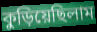
কুড়িয়েছিলাম